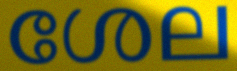
ശേല